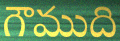
గౌముది